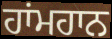
ਹਾਂਮਹਾਨ